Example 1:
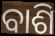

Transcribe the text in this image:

ବାଶି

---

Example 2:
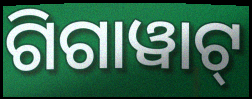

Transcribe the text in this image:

ଗିଗାୱାଟ୍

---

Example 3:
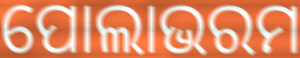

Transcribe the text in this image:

ପୋଲାଭରମ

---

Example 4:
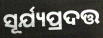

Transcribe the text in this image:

ସୂର୍ଯ୍ୟପ୍ରଦତ୍ତ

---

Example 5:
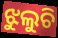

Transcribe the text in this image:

ଝୁଲୁଚି